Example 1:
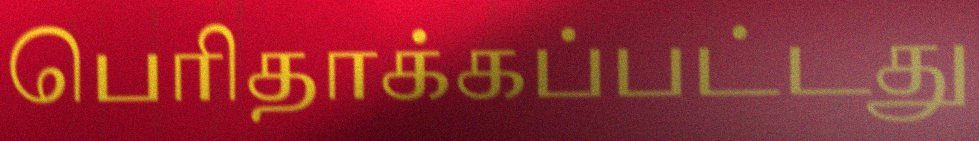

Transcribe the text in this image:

பெரிதாக்கப்பட்டது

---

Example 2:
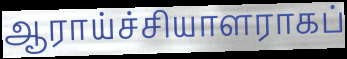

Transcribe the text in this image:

ஆராய்ச்சியாளராகப்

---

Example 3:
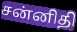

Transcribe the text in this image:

சன்னிதி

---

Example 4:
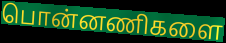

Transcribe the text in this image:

பொன்னணிகளை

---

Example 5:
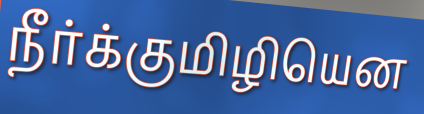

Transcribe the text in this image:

நீர்க்குமிழியென